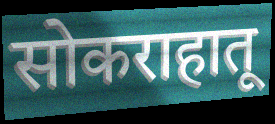
सोकराहातू